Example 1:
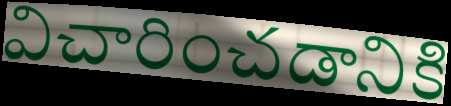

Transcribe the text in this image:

విచారించడానికి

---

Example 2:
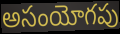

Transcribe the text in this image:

అసంయోగపు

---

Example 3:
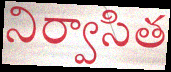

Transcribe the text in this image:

నిర్వాసిత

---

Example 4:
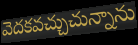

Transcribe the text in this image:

వెదకవచ్చుచున్నాను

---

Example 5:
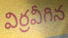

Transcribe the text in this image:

విర్రవీగిన